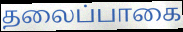
தலைப்பாகை